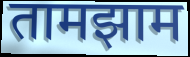
तामझाम